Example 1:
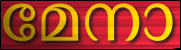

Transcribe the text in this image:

മേനാ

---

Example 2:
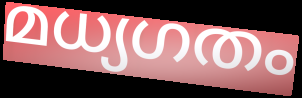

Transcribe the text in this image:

മധ്യഗതം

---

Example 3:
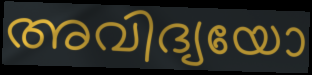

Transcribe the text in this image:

അവിദ്യയോ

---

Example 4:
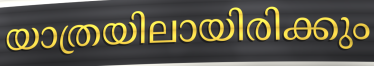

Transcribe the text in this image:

യാത്രയിലായിരിക്കും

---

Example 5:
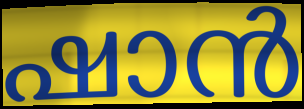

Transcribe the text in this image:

ഷാൻ